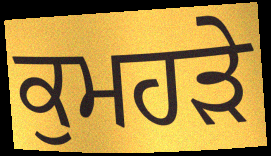
ਕੁਮਹੜੇ